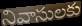
నివాసులకు